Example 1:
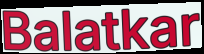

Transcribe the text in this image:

Balatkar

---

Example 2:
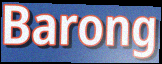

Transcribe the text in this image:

Barong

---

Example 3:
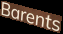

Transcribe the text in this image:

Barents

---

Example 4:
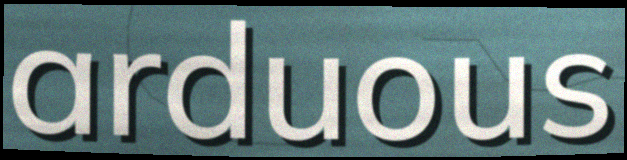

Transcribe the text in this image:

arduous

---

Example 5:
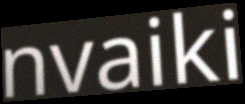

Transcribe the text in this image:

nvaiki